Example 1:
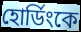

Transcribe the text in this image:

হোর্ডিংকে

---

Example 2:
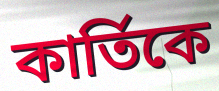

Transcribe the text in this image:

কার্তিকে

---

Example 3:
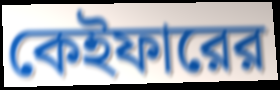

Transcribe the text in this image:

কেইফারের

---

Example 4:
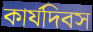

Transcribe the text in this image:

কার্যদিবস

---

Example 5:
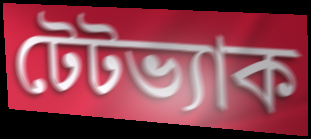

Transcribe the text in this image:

টেটভ্যাক